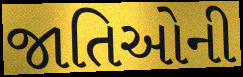
જાતિઓની